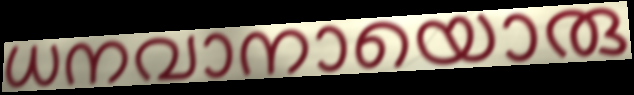
ധനവാനായൊരു